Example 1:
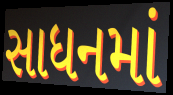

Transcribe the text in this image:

સાધનમાં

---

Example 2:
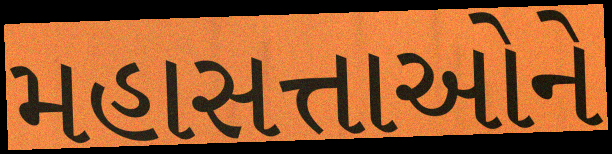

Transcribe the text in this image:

મહાસત્તાઓને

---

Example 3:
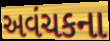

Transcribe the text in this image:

અવંચકના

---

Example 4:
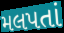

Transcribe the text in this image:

મલપતાં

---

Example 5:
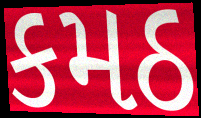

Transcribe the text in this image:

કમઠ